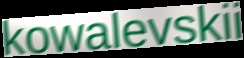
kowalevskii